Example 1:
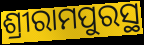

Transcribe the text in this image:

ଶ୍ରୀରାମପୁରସ୍ଥ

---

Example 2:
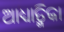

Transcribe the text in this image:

ଆଧ୍ୟାତ୍ମିକା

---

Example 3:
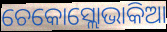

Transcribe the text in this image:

ଚେକୋସ୍ଲୋଭାକିଆ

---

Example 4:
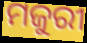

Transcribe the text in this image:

ମଜୁରୀ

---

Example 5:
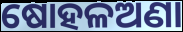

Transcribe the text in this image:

ଷୋହଳଅଣା